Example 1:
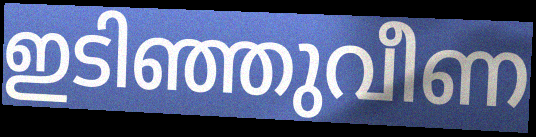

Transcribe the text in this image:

ഇടിഞ്ഞുവീണ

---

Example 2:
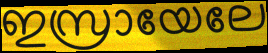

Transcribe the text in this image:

ഇസ്രായേലേ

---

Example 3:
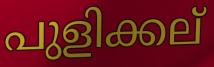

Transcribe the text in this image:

പുളിക്കല്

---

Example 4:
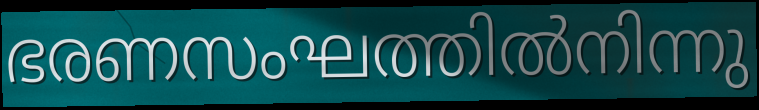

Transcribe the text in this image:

ഭരണസംഘത്തിൽനിന്നു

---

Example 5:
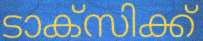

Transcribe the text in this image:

ടാക്സിക്ക്